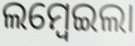
ଲମ୍ବେଇଲା